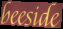
beeside